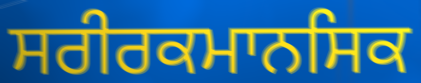
ਸਰੀਰਕਮਾਨਸਿਕ